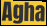
Agha